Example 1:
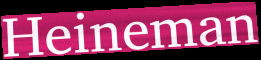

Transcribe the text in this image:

Heineman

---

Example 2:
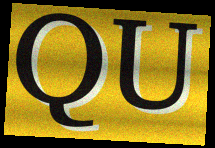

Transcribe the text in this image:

QU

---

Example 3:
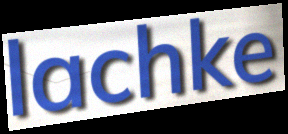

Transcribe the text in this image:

lachke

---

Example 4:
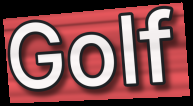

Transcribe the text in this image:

Golf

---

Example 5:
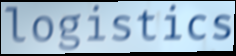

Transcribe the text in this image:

logistics